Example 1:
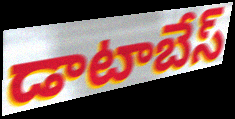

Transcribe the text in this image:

డాటాబేస్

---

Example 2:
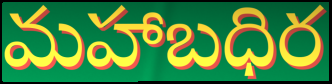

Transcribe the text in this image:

మహాబధిర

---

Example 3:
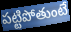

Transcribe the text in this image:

పట్టిపోతుంటే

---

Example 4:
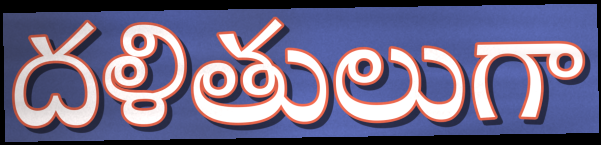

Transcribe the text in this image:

దళితులుగా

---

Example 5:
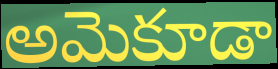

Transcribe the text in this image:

అమెకూడా